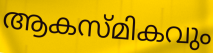
ആകസ്മികവും